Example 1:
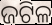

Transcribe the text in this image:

ଜଟିଳ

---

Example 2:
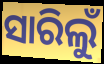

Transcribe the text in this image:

ସାରିଲୁଁ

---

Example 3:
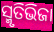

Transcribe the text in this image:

ସ୍ମୃତିଭିଜା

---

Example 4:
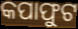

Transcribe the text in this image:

କପାଫୁଟ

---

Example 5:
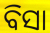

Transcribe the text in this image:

ବିସା